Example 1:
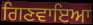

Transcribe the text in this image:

ਗਿਣਵਾਇਆ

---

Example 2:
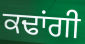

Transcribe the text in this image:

ਕਢਾਂਗੀ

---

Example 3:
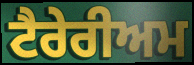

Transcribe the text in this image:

ਟੈਰੇਰੀਅਮ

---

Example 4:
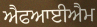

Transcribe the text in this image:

ਐਫਆਈਐਮ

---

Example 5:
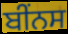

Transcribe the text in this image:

ਬੀਂਨਸ